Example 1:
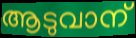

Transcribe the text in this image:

ആടുവാന്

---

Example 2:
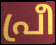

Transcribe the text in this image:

പ്രീ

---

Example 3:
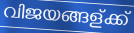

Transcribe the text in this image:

വിജയങ്ങള്ക്ക്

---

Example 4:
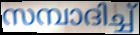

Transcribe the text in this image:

സമ്പാദിച്ച്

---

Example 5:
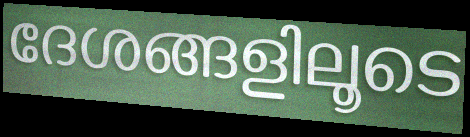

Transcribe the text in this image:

ദേശങ്ങളിലൂടെ